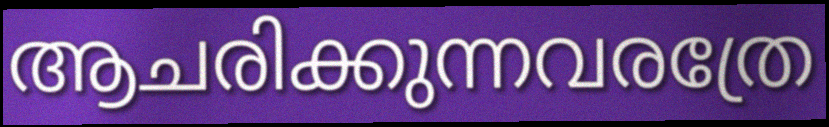
ആചരിക്കുന്നവരത്രേ